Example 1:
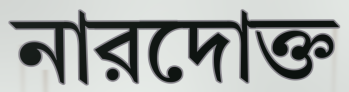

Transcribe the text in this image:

নারদোক্ত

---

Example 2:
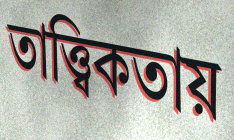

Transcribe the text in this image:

তাত্ত্বিকতায়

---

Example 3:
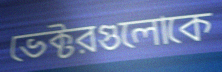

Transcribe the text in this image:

ভেক্টরগুলোকে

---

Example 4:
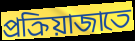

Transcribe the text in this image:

প্রক্রিয়াজাতে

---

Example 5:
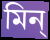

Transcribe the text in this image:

মিন্